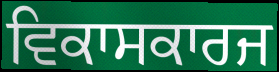
ਵਿਕਾਸਕਾਰਜ